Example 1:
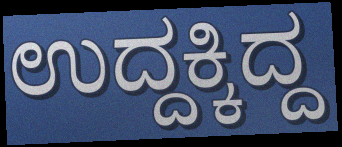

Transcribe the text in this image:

ಉದ್ದಕ್ಕಿದ್ದ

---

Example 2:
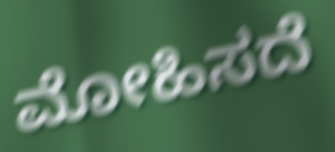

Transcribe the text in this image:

ಮೋಹಿಸದೆ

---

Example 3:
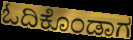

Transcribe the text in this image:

ಓದಿಕೊಂಡಾಗ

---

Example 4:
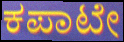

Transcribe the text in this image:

ಕಪಾಟೇ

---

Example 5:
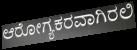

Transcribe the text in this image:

ಆರೋಗ್ಯಕರವಾಗಿರಲಿ